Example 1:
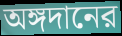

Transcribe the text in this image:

অঙ্গদানের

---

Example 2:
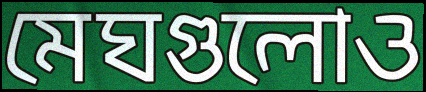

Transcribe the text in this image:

মেঘগুলোও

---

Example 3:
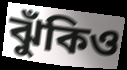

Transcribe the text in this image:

ঝুঁকিও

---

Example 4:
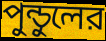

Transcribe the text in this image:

পুন্ডুলের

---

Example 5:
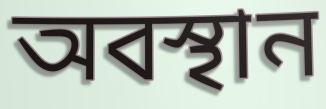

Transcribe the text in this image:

অবস্থান